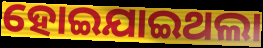
ହୋଇଯାଇଥଲା